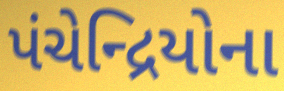
પંચેન્દ્રિયોના